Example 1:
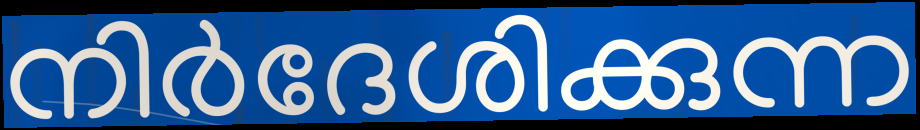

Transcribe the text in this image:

നിർദേശിക്കുന്ന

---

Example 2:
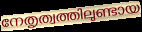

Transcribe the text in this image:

നേതൃത്വത്തിലുണ്ടായ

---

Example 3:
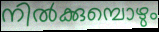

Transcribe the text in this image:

നിൽക്കുമ്പൊഴും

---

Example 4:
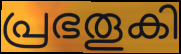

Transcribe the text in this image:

പ്രഭതൂകി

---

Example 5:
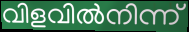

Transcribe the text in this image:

വിളവിൽനിന്ന്